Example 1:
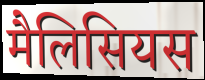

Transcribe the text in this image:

मैलिसियस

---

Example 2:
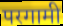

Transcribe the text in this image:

परगामी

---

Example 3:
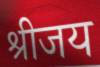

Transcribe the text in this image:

श्रीजय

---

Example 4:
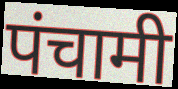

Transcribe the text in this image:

पंचामी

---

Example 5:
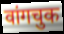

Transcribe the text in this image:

वांगचुक